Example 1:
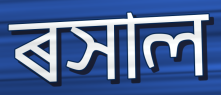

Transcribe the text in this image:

ৰসাল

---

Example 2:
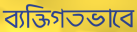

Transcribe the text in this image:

ব্যক্তিগতভাবে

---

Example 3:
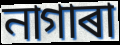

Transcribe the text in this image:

নাগাৰা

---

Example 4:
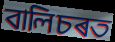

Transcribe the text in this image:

বালিচৰত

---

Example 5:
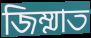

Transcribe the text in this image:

জিম্মাত